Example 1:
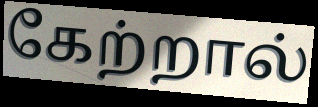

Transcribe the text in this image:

கேற்றால்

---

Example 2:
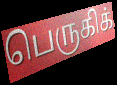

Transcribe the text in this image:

பெருகிக்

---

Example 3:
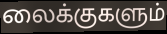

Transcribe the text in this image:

லைக்குகளும்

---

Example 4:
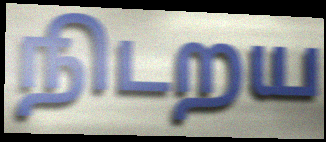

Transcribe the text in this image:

நிடறய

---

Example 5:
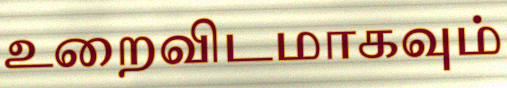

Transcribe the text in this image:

உறைவிடமாகவும்